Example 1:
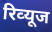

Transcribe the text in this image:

रिव्‍यूज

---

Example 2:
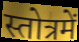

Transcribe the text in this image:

स्तोत्रमें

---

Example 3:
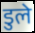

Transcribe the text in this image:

डुले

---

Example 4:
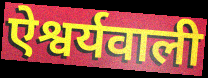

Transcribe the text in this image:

ऐश्वर्यवाली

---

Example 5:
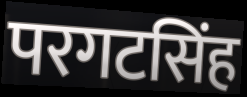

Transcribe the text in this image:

परगटसिंह